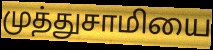
முத்துசாமியை